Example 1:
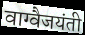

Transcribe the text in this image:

वाग्वैजयंती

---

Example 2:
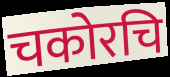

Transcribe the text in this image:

चकोरचि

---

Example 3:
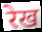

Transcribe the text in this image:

रेख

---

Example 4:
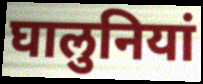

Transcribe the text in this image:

घालुनियां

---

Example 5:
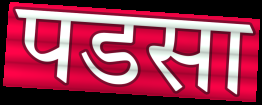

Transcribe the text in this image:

पडसा